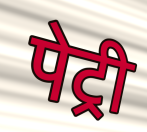
पेट्री